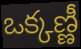
ఒక్కణ్ణీ